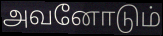
அவனோடும்